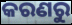
କରଣରୁ